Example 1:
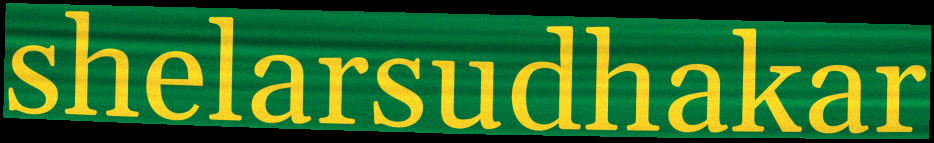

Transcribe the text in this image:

shelarsudhakar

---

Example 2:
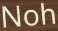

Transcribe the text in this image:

Noh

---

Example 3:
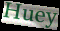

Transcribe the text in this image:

Huey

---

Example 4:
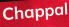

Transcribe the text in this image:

Chappal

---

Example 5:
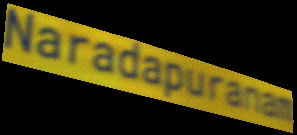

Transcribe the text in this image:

Naradapuranam